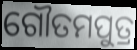
ଗୌତମପୁତ୍ର